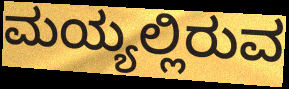
ಮಯ್ಯಲ್ಲಿರುವ